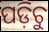
ପଡ଼ିଚୁ